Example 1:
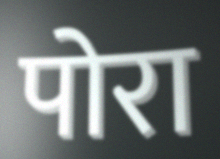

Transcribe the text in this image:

पोरा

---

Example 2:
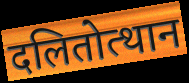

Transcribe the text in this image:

दलितोत्थान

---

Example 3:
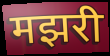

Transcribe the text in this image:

मझरी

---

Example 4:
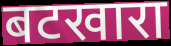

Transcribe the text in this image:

बटखारा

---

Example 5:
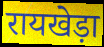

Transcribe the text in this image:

रायखेड़ा